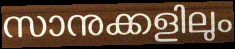
സാനുക്കളിലും